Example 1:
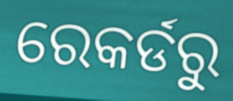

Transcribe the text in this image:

ରେକର୍ଡରୁ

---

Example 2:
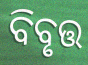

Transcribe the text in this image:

ବିବୃତ୍ତ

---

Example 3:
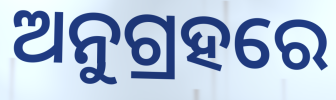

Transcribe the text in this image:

ଅନୁଗ୍ରହରେ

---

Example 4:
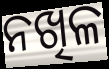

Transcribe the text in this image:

ନଖିଳ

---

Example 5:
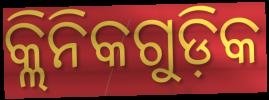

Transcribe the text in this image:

କ୍ଲିନିକଗୁଡ଼ିକ